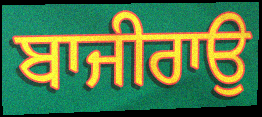
ਬਾਜੀਰਾਉ